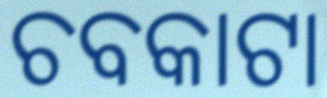
ଚବକାଟା